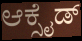
ಆಕ್ಸೈಡ್